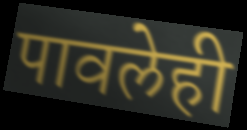
पावलेही